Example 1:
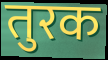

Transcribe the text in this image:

तुरक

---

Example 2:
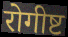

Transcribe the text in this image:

रोगीष्ट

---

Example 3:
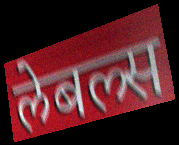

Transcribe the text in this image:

लेबल्स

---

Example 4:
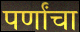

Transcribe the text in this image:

पर्णांचा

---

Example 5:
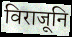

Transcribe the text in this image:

विराजूनि